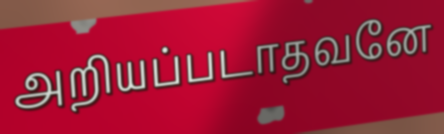
அறியப்படாதவனே